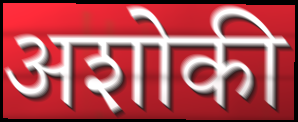
अशोकी